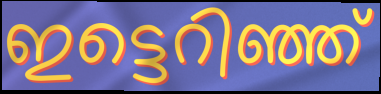
ഇട്ടെറിഞ്ഞ്